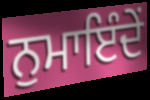
ਨੁਮਾਇੰਦੇਂ